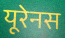
यूरेनस